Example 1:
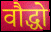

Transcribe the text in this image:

वौद्धो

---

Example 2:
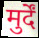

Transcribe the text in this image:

मुर्दें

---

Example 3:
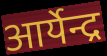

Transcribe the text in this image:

आर्येन्द्र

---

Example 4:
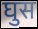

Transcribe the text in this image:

घुस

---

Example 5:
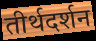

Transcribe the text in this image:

तीर्थदर्शन